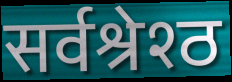
सर्वश्रेश्ठ